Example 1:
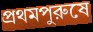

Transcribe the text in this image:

প্রথমপুরুষে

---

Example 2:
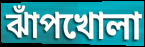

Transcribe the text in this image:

ঝাঁপখোলা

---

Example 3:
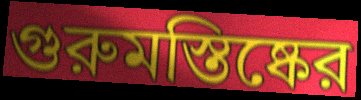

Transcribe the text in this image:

গুরুমস্তিষ্কের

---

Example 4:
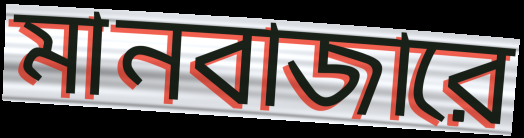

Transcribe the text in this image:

মানবাজারে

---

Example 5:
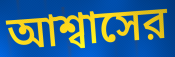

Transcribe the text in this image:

আশ্বাসের